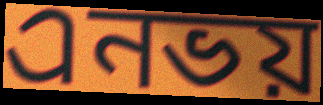
এনভয়